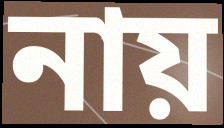
নায়